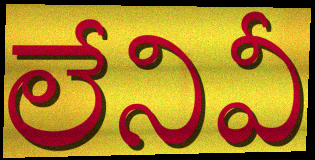
లేనివీ